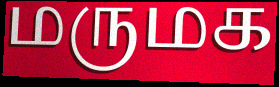
மருமக